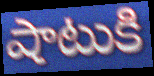
షాటుకి